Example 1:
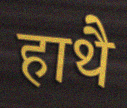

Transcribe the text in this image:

हाथै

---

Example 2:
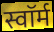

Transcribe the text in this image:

स्वॉर्म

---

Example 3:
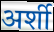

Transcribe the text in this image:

अर्शी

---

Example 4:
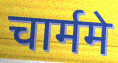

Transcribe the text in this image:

चार्ममे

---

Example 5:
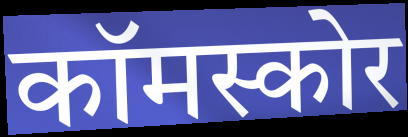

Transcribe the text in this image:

कॉमस्कोर